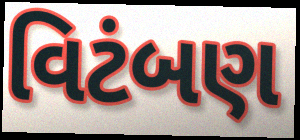
વિટંબણ